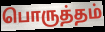
பொருத்தம்